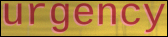
urgency